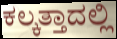
ಕಲ್ಕತ್ತಾದಲ್ಲಿ